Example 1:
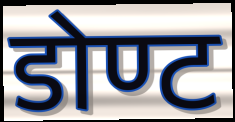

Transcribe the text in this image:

डोण्ट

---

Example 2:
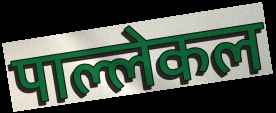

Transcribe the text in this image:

पाल्लेकल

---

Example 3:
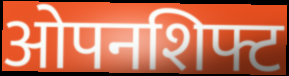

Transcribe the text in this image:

ओपनशिफ्ट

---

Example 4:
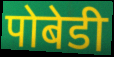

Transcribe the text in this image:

पोबेडी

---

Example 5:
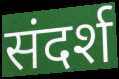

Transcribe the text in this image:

संदर्श